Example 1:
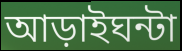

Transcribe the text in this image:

আড়াইঘন্টা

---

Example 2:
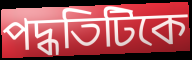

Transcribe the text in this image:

পদ্ধতিটিকে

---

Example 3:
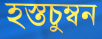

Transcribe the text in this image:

হস্তচুম্বন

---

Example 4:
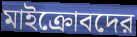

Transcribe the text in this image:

মাইক্রোবদের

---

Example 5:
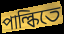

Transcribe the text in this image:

পাল্কিতে